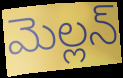
మెల్లన్